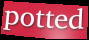
potted